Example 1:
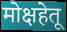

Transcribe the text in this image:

मोक्षहेतू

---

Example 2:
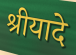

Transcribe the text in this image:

श्रीयादे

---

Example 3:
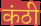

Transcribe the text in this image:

कंठी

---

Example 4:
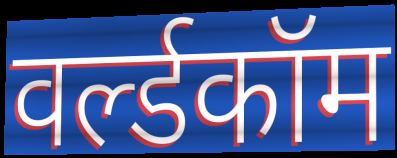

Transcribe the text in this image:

वर्ल्डकॉम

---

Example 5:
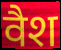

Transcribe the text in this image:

वैश